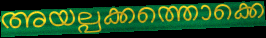
അയല്പക്കത്തൊക്കെ